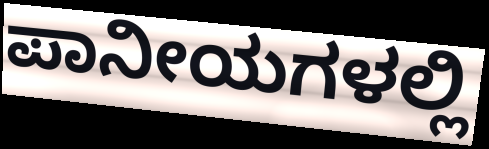
ಪಾನೀಯಗಳಲ್ಲಿ